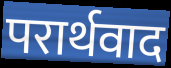
परार्थवाद